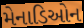
મેનાડિઓન